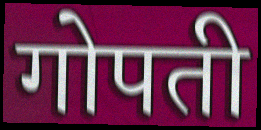
गोपती